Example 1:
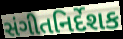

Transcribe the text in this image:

સંગીતનિર્દેશક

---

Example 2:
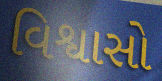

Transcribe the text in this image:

વિશ્વાસો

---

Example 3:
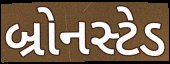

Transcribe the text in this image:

બ્રોનસ્ટેડ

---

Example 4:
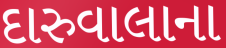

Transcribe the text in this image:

દારુવાલાના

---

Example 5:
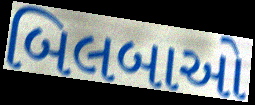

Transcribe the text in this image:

બિલબાઓ